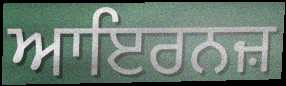
ਆਇਰਨਜ਼